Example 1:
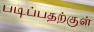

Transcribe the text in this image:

படிப்பதற்குள்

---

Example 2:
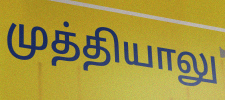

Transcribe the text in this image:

முத்தியாலு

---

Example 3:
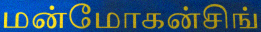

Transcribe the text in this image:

மன்மோகன்சிங்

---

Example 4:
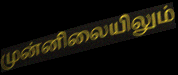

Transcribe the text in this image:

முன்னிலையிலும்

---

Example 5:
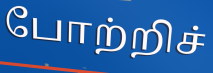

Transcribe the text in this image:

போற்றிச்